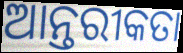
ଆନ୍ତରୀକତା